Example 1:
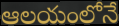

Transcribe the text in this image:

ఆలయంలోనే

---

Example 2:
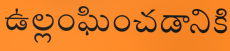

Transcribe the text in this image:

ఉల్లంఘించడానికి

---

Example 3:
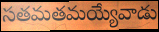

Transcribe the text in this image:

సతమతమయ్యేవాడు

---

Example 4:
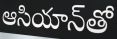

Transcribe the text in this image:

ఆసియాన్‌తో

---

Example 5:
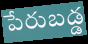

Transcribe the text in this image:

పేరుబడ్డ